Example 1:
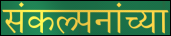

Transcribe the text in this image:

संकल्पनांच्या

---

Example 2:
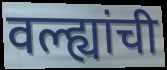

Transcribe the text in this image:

वल्ह्यांची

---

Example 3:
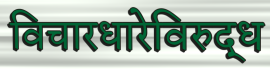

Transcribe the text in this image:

विचारधारेविरुद्ध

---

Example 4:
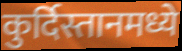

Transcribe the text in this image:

कुर्दिस्तानमध्ये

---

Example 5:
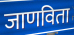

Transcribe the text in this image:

जाणविता